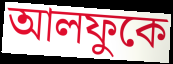
আলফুকে